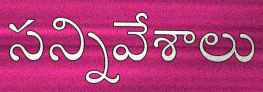
సన్నివేశాలు